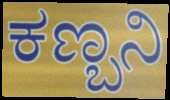
ಕಣ್ಬನಿ